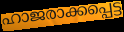
ഹാജരാക്കപ്പെട്ട